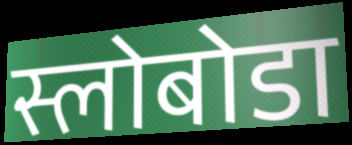
स्लोबोडा